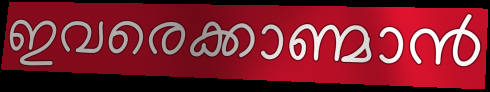
ഇവരെക്കാണ്മാൻ